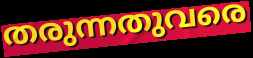
തരുന്നതുവരെ